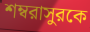
শম্বরাসুরকে